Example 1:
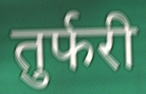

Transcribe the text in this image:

तुर्फरी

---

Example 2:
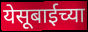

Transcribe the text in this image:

येसूबाईच्या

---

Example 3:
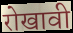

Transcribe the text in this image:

रोखावी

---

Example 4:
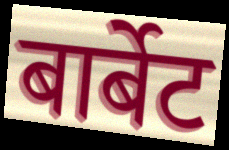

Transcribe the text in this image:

बार्बेट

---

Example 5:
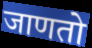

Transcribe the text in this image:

जाणतो